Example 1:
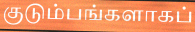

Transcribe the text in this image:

குடும்பங்களாகப்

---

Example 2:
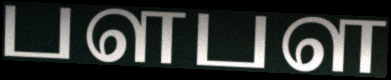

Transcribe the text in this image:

பளபள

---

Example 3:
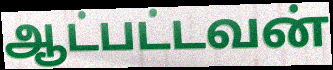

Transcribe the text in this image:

ஆட்பட்டவன்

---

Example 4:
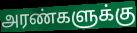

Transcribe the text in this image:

அரண்களுக்கு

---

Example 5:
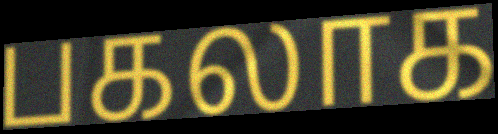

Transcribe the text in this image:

பகலாக